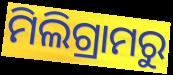
ମିଲିଗ୍ରାମରୁ